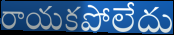
రాయకపోలేదు